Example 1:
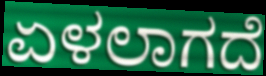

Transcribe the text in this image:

ಏಳಲಾಗದೆ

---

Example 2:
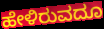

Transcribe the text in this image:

ಹೇಳಿರುವದೂ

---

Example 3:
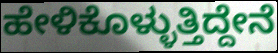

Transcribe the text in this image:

ಹೇಳಿಕೊಳ್ಳುತ್ತಿದ್ದೇನೆ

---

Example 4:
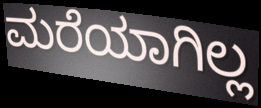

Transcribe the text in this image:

ಮರೆಯಾಗಿಲ್ಲ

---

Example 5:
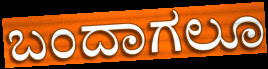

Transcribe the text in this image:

ಬಂದಾಗಲೂ